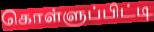
கொள்ளுப்பிட்டி